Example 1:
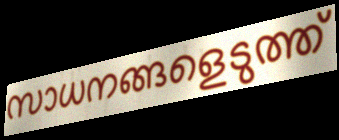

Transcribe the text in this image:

സാധനങ്ങളെടുത്ത്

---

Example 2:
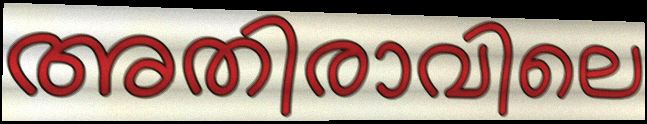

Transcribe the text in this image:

അതിരാവിലെ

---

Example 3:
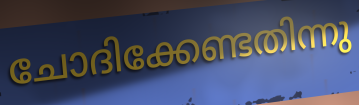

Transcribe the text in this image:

ചോദിക്കേണ്ടതിന്നു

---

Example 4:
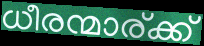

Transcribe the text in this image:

ധീരന്മാര്ക്ക്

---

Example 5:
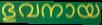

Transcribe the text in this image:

ഭുവനായ